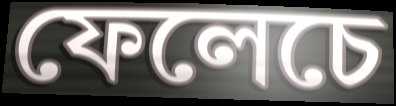
ফেলেচে